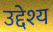
उद्देश्य